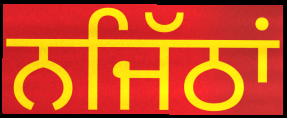
ਨਜਿੱਠਾਂ